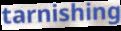
tarnishing